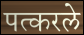
पत्करले